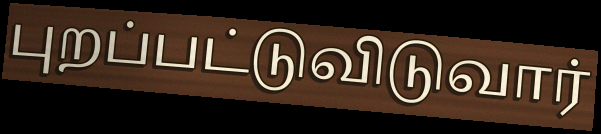
புறப்பட்டுவிடுவார்